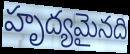
హృద్యమైనది